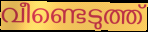
വീണ്ടെടുത്ത്